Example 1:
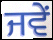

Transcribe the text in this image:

ਜਵੇਂ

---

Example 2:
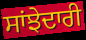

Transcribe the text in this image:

ਸਾਂਝੇਦਾਰੀ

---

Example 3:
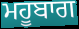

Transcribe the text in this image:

ਮਹੂਬਾਗ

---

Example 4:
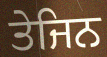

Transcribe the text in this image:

ਤੇਜਿਨ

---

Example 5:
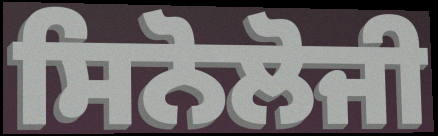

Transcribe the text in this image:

ਸਿਨੋਲੋਜੀ